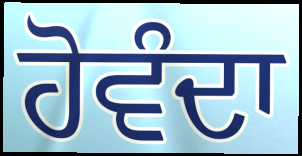
ਹੋਵੰਦਾ